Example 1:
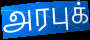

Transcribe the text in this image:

அரபுக்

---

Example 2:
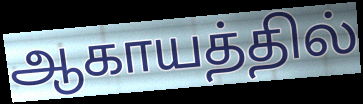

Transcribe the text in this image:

ஆகாயத்தில்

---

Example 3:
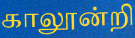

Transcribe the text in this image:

காலூன்றி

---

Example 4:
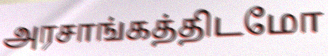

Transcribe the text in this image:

அரசாங்கத்திடமோ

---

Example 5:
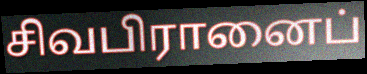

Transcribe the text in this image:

சிவபிரானைப்